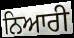
ਨਿਆਰੀ